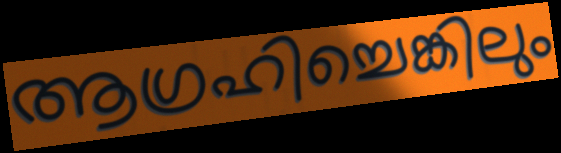
ആഗ്രഹിച്ചെങ്കിലും